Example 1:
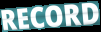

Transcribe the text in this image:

RECORD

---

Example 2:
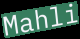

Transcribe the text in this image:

Mahli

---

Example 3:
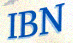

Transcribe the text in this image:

IBN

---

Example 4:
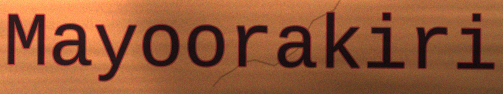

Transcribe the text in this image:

Mayoorakiri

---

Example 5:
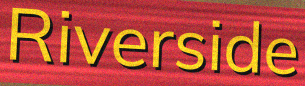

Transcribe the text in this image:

Riverside